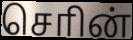
செரின்